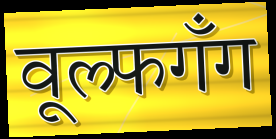
वूल्फगँग